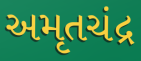
અમૃતચંદ્ર